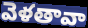
వెళతావా